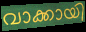
വാക്കായി